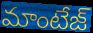
మాంటేజ్